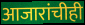
आजारांचीही